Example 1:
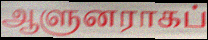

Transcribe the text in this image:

ஆளுனராகப்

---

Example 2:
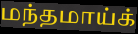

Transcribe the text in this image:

மந்தமாய்க்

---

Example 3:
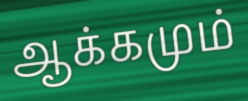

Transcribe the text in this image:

ஆக்கமும்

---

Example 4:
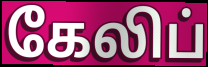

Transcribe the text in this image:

கேலிப்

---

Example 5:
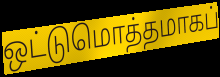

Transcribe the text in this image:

ஒட்டுமொத்தமாகப்